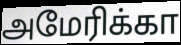
அமேரிக்கா